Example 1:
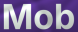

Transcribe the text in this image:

Mob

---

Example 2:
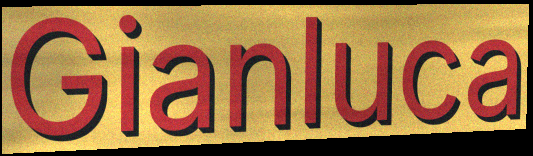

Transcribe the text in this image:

Gianluca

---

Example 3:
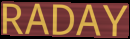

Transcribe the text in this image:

RADAY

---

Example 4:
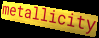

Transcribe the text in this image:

metallicity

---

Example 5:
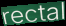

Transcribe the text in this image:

rectal